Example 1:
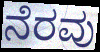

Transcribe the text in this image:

ನೆರವು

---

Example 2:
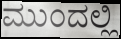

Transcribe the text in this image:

ಮುಂದಲ್ಲಿ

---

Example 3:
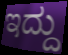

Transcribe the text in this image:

ಇದ್ದು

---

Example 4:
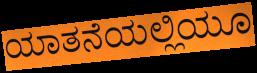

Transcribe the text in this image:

ಯಾತನೆಯಲ್ಲಿಯೂ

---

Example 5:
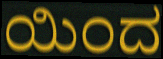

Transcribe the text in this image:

ಯಿಂದ